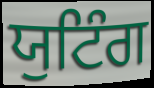
ਯੁਟਿੰਗ